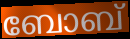
ബോബ്